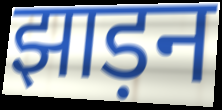
झाड़न